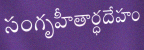
సంగృహీతార్ధదేహం